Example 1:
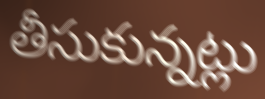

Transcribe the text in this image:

తీసుకున్నట్లు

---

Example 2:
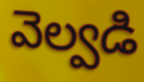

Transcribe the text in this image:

వెల్వడి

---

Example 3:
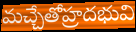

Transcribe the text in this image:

మచ్చేతోహ్రదభువి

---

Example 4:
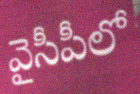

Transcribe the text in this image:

వైసీపీలో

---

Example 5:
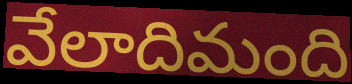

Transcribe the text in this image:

వేలాదిమంది